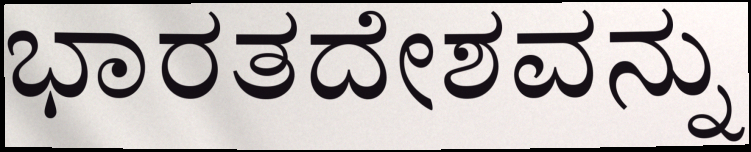
ಭಾರತದೇಶವನ್ನು